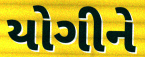
યોગીને